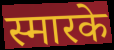
स्मारके